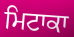
ਮਿਟਾਕਾ